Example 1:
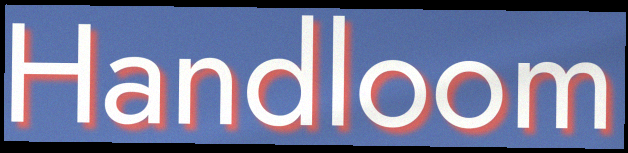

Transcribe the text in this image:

Handloom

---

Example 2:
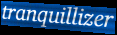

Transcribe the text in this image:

tranquillizer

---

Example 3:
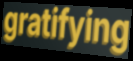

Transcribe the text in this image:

gratifying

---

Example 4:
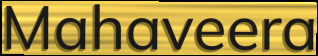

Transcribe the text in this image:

Mahaveera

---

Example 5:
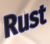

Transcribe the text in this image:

Rust